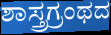
ಶಾಸ್ತ್ರಗ್ರಂಥದ